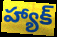
హ్యాక్